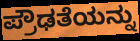
ಪ್ರೌಢತೆಯನ್ನು